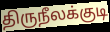
திருநீலக்குடி